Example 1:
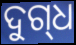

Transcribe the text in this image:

ଦୁଗ୍‌ଧ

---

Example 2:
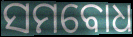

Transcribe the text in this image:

ସମବୋଧ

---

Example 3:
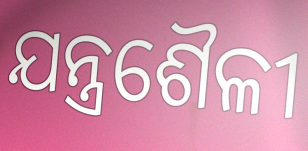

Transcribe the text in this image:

ଯନ୍ତ୍ରଶୈଳୀ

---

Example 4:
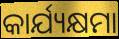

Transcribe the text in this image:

କାର୍ଯ୍ୟକ୍ଷମା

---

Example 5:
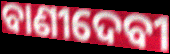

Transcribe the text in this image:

ବାଣୀଦେବୀ